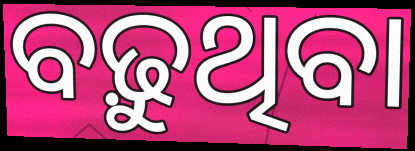
ବଢ଼ୁଥିବା